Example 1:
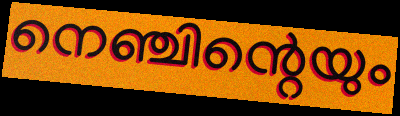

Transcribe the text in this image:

നെഞ്ചിന്റെയും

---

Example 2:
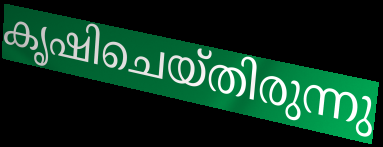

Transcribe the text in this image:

കൃഷിചെയ്തിരുന്നു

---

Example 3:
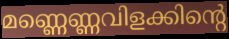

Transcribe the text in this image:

മണ്ണെണ്ണവിളക്കിന്റെ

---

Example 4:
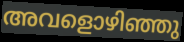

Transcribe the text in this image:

അവളൊഴിഞ്ഞു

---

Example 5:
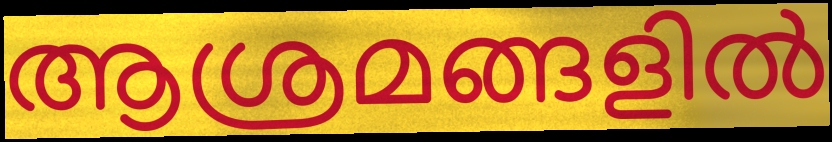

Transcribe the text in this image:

ആശ്രമങ്ങളിൽ